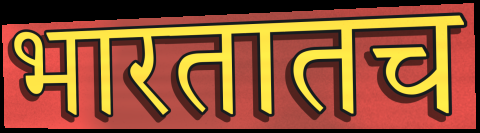
भारतातच